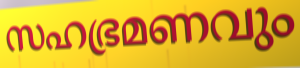
സഹഭ്രമണവും